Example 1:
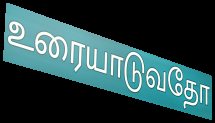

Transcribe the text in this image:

உரையாடுவதோ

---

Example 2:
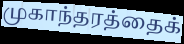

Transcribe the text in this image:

முகாந்தரத்தைக்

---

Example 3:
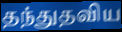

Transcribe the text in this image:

தந்துதவிய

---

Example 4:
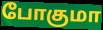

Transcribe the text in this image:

போகுமா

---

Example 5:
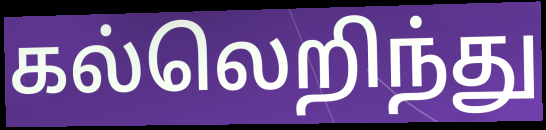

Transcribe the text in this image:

கல்லெறிந்து